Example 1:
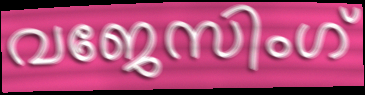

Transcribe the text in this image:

വജേസിംഗ്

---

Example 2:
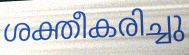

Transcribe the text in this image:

ശക്തീകരിച്ചു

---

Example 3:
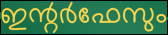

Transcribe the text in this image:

ഇന്റർഫേസും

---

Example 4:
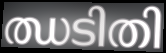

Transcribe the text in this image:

ഝടിതി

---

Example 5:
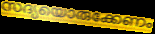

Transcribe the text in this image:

സദ്യയൊരുക്കേണം